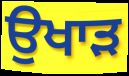
ਉਖਾੜ